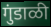
गुंडाळी